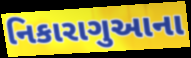
નિકારાગુઆના